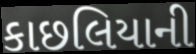
કાછલિયાની